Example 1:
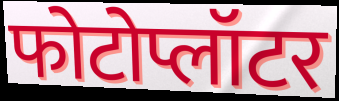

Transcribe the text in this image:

फोटोप्लॉटर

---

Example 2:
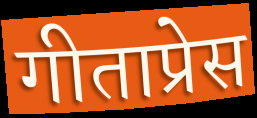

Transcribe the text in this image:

गीताप्रेस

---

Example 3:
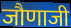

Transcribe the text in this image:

जौणाजी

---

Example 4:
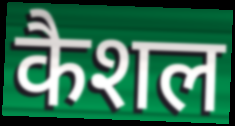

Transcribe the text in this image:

कैशल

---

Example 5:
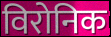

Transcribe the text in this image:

विरोनिक